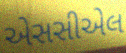
એસસીએલ